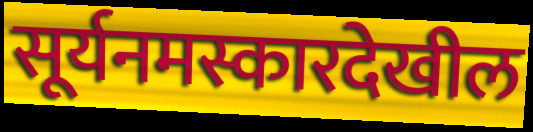
सूर्यनमस्कारदेखील